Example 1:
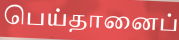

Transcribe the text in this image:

பெய்தானைப்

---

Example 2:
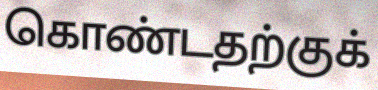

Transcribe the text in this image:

கொண்டதற்குக்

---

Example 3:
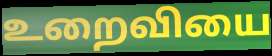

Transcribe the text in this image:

உறைவியை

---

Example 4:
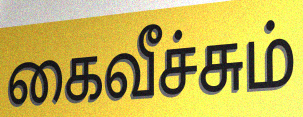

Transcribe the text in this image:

கைவீச்சும்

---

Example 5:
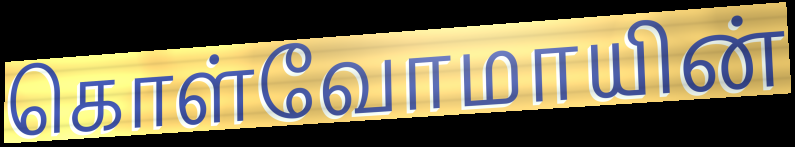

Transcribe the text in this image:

கொள்வோமாயின்